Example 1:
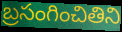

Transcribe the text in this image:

బ్రసంగించితిని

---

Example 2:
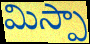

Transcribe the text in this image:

మిస్పా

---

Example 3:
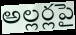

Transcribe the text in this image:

అల్లర్లపై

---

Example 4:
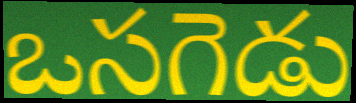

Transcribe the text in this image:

ఒసగెడు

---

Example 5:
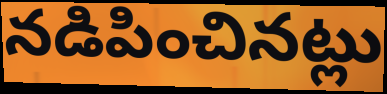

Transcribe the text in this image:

నడిపించినట్లు